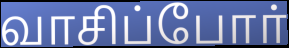
வாசிப்போர்